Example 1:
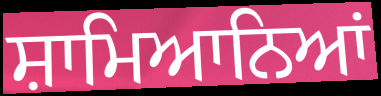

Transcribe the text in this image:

ਸ਼ਾਮਿਆਨਿਆਂ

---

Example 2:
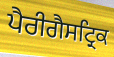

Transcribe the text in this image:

ਪੈਰੀਗੈਸਟ੍ਰਿਕ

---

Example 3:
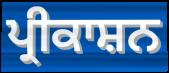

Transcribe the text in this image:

ਪ੍ਰੀਕਾਸ਼ਨ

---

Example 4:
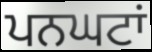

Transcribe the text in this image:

ਪਨਘਟਾਂ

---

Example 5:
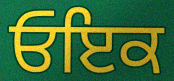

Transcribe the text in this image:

ਓਇਕ